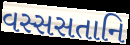
વસ્સસતાનિ